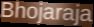
Bhojaraja